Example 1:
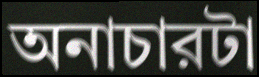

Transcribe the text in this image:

অনাচারটা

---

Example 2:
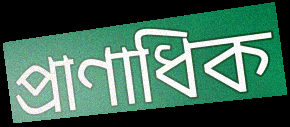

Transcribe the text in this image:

প্রাণাধিক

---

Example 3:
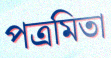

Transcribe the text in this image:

পত্রমিতা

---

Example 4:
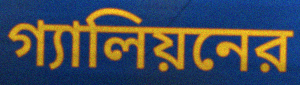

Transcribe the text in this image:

গ্যালিয়নের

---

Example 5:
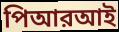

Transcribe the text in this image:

পিআরআই